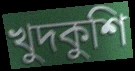
খুদকুশি